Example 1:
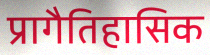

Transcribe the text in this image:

प्रागैतिहासिक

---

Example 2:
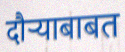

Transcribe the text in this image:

दौऱ्याबाबत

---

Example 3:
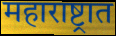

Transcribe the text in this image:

महाराष्ट्रात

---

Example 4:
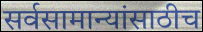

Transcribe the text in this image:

सर्वसामान्यांसाठीच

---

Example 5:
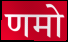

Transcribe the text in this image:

णमो